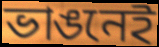
ভাঙনেই